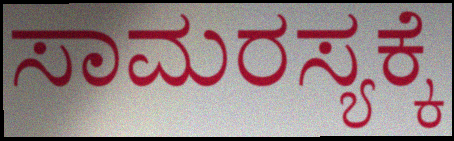
ಸಾಮರಸ್ಯಕ್ಕೆ